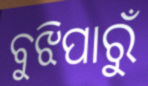
ବୁଝିପାରୁଁ